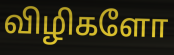
விழிகளோ